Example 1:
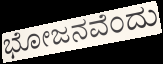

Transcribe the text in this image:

ಭೋಜನವೆಂದು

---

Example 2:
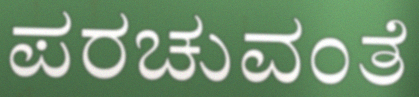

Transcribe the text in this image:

ಪರಚುವಂತೆ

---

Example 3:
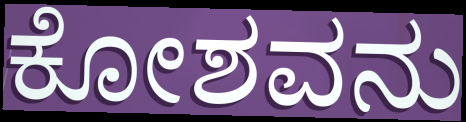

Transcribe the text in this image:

ಕೋಶವನು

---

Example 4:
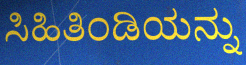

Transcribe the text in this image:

ಸಿಹಿತಿಂಡಿಯನ್ನು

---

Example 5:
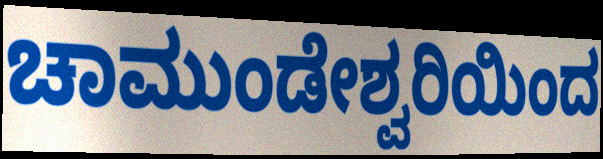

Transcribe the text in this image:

ಚಾಮುಂಡೇಶ್ವರಿಯಿಂದ